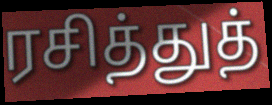
ரசித்துத்